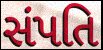
સંપતિ